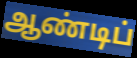
ஆண்டிப்